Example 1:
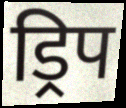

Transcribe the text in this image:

ड्रिप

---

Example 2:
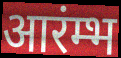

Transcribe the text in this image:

आरंम्भ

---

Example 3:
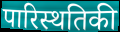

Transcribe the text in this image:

पारिस्थतिकी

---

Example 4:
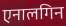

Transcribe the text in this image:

एनालगिन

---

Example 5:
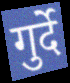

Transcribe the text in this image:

गुर्दे